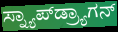
ಸ್ನ್ಯಾಪ್‌ಡ್ರ್ಯಾಗನ್